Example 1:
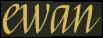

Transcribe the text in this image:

ewan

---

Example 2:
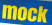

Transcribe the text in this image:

mock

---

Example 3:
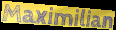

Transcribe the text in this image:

Maximilian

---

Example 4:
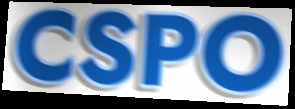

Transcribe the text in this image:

CSPO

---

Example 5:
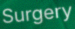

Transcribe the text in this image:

Surgery